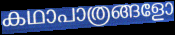
കഥാപാത്രങ്ങളോ